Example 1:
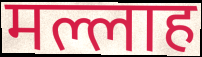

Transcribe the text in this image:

मल्‍लाह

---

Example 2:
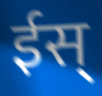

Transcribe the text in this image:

ईस्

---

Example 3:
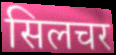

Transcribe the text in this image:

सिलचर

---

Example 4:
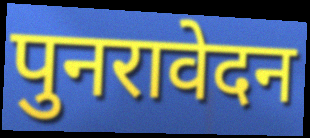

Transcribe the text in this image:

पुनरावेदन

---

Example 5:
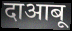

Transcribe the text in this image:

दाआबू